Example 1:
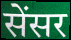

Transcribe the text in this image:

सेंसर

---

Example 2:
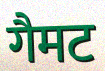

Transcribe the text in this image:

गैमट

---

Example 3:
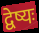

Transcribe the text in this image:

द्वेष्यः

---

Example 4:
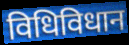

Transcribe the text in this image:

विधिविधान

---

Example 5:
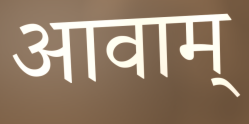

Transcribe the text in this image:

आवाम्